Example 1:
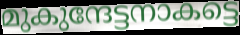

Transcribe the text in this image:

മുകുന്ദേട്ടനാകട്ടെ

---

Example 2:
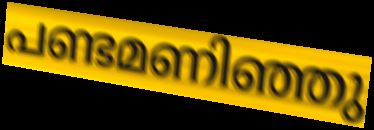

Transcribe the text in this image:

പണ്ടമണിഞ്ഞു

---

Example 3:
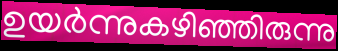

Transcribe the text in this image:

ഉയർന്നുകഴിഞ്ഞിരുന്നു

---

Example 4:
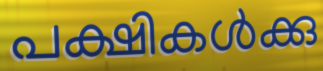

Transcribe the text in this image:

പക്ഷികൾക്കു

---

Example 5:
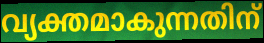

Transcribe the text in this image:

വ്യക്തമാകുന്നതിന്